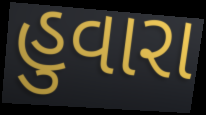
હુવારા